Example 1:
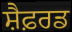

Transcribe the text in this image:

ਸ਼ੈਫ਼ਰਡ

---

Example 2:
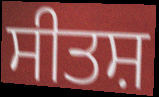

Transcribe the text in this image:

ਸੀਤਸ਼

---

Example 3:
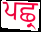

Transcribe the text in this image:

ਪਛ੍ਰ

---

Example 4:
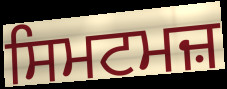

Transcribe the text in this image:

ਸਿਮਟਮਜ਼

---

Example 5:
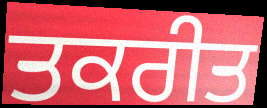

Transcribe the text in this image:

ਤਕਰੀਤ